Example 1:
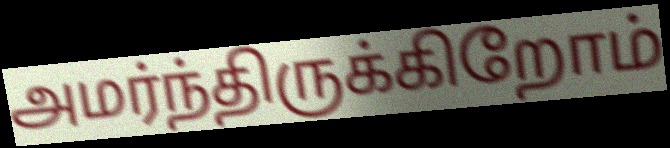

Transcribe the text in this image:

அமர்ந்திருக்கிறோம்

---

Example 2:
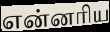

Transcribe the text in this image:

என்னரிய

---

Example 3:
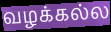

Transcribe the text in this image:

வழக்கல்ல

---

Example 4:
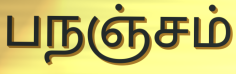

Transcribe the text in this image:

பநஞ்சம்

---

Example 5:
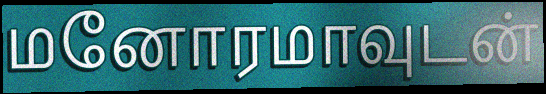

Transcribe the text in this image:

மனோரமாவுடன்